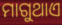
ମାଗୁଥାଏ